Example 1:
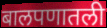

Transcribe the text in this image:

बालपणातली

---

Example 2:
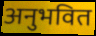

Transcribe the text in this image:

अनुभवित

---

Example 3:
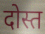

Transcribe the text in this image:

दोस्त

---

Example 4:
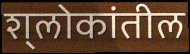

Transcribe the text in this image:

श्लोकांतील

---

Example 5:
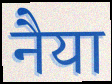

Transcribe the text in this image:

नैया